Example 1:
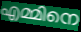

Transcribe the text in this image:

എമ്മിനെ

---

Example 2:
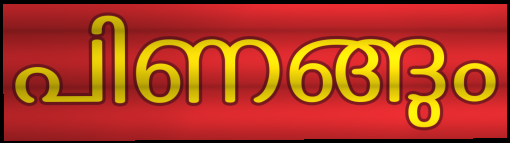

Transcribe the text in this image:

പിണങ്ങും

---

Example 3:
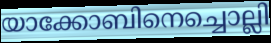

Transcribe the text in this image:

യാക്കോബിനെച്ചൊല്ലി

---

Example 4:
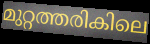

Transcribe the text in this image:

മുറ്റത്തരികിലെ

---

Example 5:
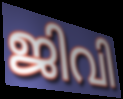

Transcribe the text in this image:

ജിവി